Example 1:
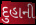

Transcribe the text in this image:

દુહાની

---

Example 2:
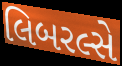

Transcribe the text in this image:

લિબરલ્સે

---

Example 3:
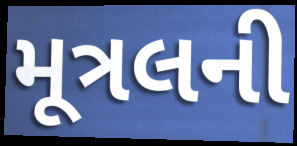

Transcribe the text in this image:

મૂત્રલની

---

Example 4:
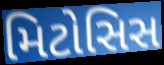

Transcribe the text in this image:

મિટોસિસ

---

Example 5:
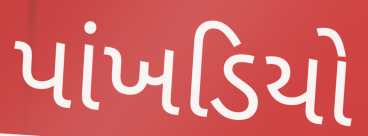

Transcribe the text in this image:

પાંખડિયો